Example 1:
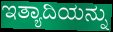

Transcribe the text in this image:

ಇತ್ಯಾದಿಯನ್ನು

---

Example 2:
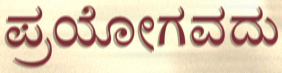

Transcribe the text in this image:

ಪ್ರಯೋಗವದು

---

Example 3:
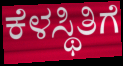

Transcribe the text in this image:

ಕೆಳಸ್ಥಿತಿಗೆ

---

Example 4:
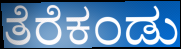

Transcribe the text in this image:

ತೆರೆಕಂಡು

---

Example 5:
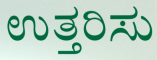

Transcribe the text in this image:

ಉತ್ತರಿಸು